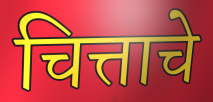
चित्ताचे